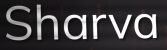
Sharva